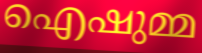
ഐഷുമ്മ